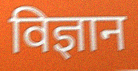
विज्ञान